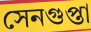
সেনগুপ্তা